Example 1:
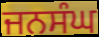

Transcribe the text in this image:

ਜਨਸੰਘ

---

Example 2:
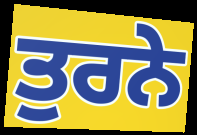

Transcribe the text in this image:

ਤੁਰਨੇ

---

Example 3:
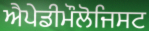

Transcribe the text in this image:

ਐਪੇਡੀਮੌਲੋਜਿਸਟ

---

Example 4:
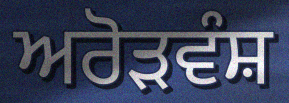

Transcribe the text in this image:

ਅਰੋੜਵੰਸ਼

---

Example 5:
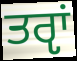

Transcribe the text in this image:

ਤਰੵਾਂ